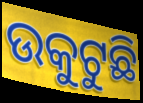
ଉକୁଟୁଛି